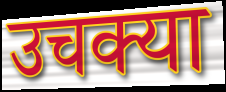
उचक्या